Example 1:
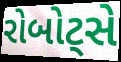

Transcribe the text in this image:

રોબોટ્સે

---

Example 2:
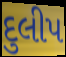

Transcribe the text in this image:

દુલીપ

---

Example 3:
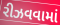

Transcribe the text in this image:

રીઝવવામાં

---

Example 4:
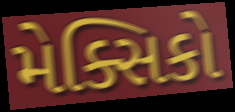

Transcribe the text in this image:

મેક્સિકો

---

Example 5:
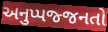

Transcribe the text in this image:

અનુપ્પજ્જનતો